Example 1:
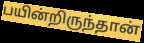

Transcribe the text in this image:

பயின்றிருந்தான்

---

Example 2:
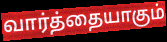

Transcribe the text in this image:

வார்த்தையாகும்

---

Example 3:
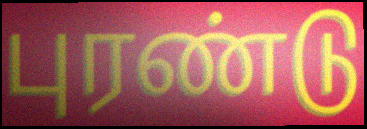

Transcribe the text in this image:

புரண்டு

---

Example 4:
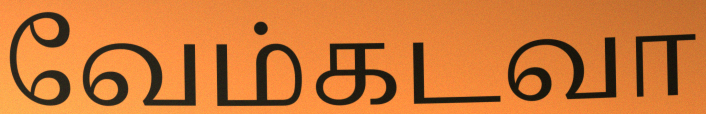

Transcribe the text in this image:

வேம்கடவா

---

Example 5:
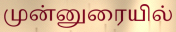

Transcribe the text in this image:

முன்னுரையில்